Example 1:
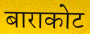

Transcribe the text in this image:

बाराकोट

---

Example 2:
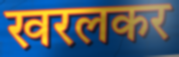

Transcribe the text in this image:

खरलकर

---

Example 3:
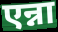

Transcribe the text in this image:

एन्ना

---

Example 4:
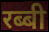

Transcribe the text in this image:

रब्बी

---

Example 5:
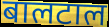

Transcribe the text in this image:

बालटाल